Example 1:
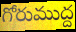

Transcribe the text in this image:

గోరుముద్ద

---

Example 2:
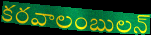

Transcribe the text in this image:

కరవాలంబులన్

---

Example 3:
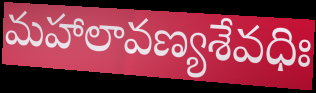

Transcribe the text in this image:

మహాలావణ్యశేవధిః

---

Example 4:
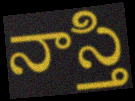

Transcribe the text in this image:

నాస్తి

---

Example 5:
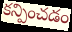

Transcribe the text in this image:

కన్పించడం